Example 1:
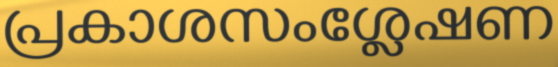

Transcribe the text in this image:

പ്രകാശസംശ്ലേഷണ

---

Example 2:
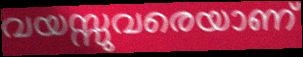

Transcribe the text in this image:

വയസ്സുവരെയാണ്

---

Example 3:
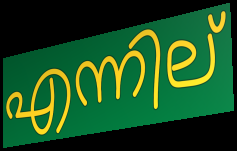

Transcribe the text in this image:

എന്നില്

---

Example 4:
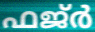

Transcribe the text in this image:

ഫജ്ർ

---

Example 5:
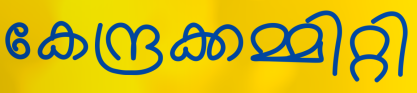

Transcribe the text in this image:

കേന്ദ്രക്കമ്മിറ്റി